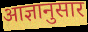
आज्ञानुसार